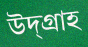
উদ্গ্রাহ